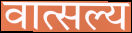
वात्सल्य